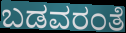
ಬಡವರಂತೆ